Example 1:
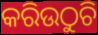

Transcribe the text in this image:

କରିଉଠୁଚି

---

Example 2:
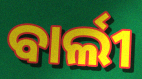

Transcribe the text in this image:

ବାର୍ଲୀ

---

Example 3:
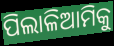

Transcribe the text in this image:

ପିଲାଳିଆମିକୁ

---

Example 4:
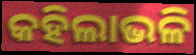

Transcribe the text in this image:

କହିଲାଭଳି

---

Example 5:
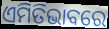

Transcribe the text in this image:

ଏମିତିଭାବରେ